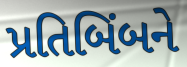
પ્રતિબિંબને